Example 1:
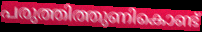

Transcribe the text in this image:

പരുത്തിത്തുണികൊണ്ട്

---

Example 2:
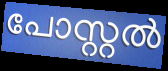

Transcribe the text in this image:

പോസ്റ്റൽ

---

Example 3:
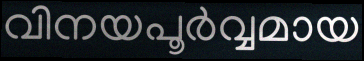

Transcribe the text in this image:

വിനയപൂർവ്വമായ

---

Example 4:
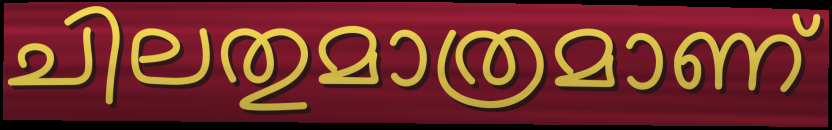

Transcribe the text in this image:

ചിലതുമാത്രമാണ്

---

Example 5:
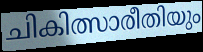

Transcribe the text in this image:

ചികിത്സാരീതിയും